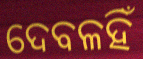
ଦେବଳହିଁ